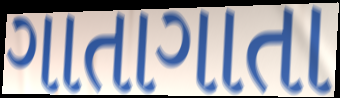
ગાતાગાતા